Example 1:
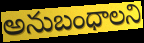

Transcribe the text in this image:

అనుబంధాలని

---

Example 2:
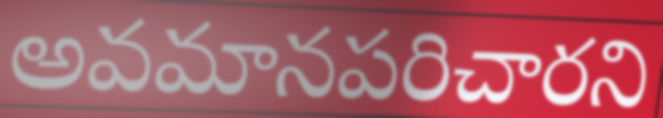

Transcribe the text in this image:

అవమానపరిచారని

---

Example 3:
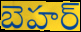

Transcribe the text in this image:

బెహర్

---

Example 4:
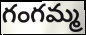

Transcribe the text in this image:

గంగమ్మ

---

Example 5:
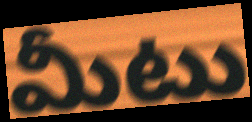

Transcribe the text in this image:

మీటు